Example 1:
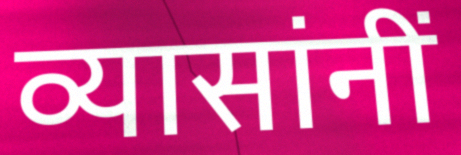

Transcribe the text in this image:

व्यासांनीं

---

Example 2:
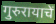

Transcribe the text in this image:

गुरुरायाचें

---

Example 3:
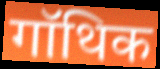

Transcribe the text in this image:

गॉथिक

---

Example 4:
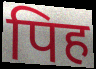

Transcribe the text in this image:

पिह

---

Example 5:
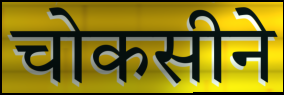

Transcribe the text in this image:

चोकसीने